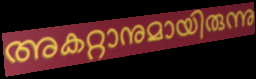
അകറ്റാനുമായിരുന്നു